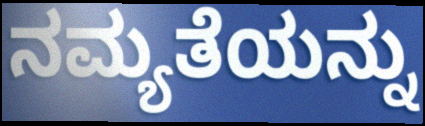
ನಮ್ಯತೆಯನ್ನು